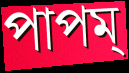
পাপম্